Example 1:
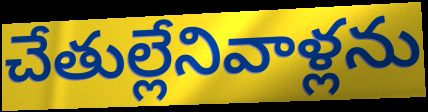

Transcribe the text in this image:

చేతుల్లేనివాళ్లను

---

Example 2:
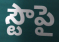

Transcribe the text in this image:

స్టౌపై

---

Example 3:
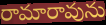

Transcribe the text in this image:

రామారావును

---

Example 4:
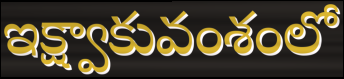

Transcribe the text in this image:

ఇక్ష్వాకువంశంలో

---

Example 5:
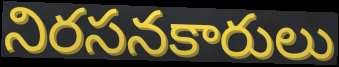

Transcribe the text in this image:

నిరసనకారులు